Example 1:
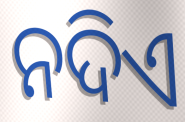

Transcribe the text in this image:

ନଦିଏ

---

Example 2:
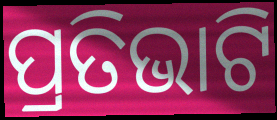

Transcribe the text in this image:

ପ୍ରତିଭାଟି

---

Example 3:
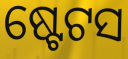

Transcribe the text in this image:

ଷ୍ଟେଟସ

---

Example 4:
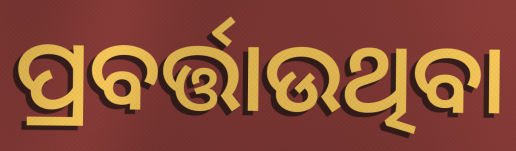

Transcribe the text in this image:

ପ୍ରବର୍ତ୍ତାଉଥିବା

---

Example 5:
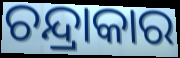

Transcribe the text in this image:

ଚନ୍ଦ୍ରାକାର